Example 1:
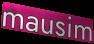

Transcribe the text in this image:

mausim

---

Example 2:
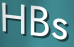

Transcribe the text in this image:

HBs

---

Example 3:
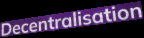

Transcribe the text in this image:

Decentralisation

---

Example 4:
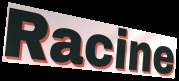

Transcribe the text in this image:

Racine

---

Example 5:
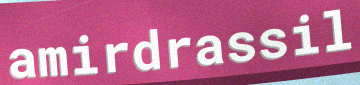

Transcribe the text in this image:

amirdrassil